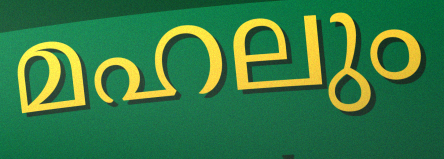
മഹലും